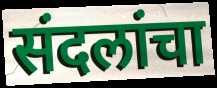
संदलांचा